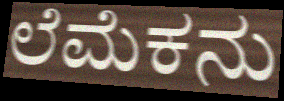
ಲೆಮೆಕನು